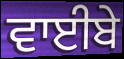
ਵਾਈਬੇ